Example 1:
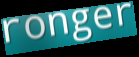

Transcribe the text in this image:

ronger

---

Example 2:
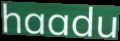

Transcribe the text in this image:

haadu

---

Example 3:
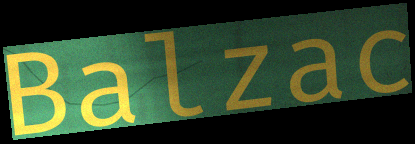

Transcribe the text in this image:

Balzac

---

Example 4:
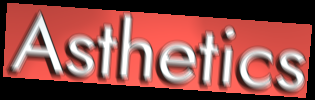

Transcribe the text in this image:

Asthetics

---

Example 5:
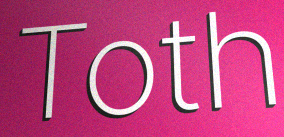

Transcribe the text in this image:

Toth